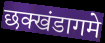
छक्खंडागमे